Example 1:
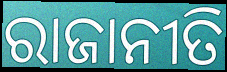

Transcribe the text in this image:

ରାଜାନୀତି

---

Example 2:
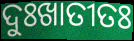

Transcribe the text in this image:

ଦୁଃଖାତୀତଃ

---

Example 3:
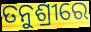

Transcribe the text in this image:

ତନୁଶ୍ରୀରେ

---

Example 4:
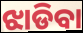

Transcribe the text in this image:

ଝାଡିବା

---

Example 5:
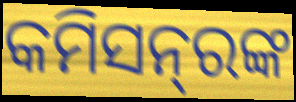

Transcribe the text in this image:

କମିସନ୍‍ରଙ୍କ